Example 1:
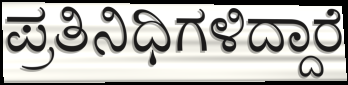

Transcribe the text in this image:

ಪ್ರತಿನಿಧಿಗಳಿದ್ದಾರೆ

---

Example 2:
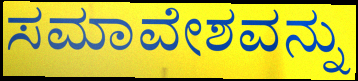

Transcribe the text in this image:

ಸಮಾವೇಶವನ್ನು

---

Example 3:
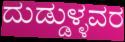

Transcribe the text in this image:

ದುಡ್ಡುಳ್ಳವರ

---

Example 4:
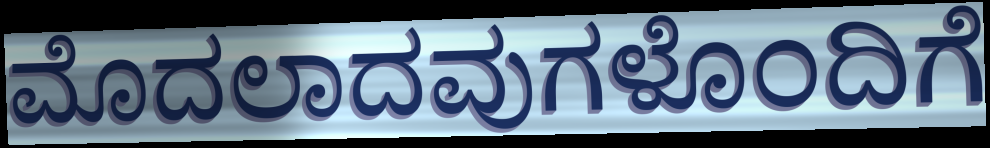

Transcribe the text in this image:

ಮೊದಲಾದವುಗಳೊಂದಿಗೆ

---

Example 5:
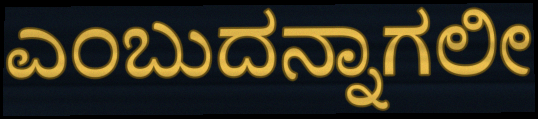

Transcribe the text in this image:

ಎಂಬುದನ್ನಾಗಲೀ